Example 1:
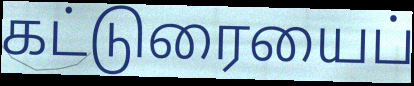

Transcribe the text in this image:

கட்டுரையைப்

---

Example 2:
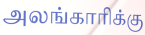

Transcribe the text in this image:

அலங்காரிக்கு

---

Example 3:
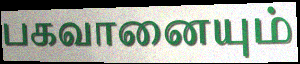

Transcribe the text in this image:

பகவானையும்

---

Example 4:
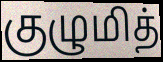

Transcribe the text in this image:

குழுமித்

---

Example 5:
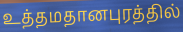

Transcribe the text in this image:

உத்தமதானபுரத்தில்